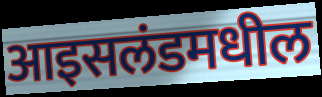
आइसलंडमधील